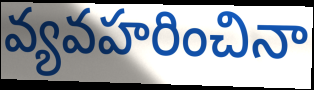
వ్యవహరించినా